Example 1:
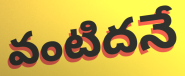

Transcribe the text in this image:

వంటిదనే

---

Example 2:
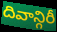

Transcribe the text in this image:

దివాన్గిరీ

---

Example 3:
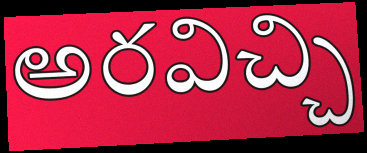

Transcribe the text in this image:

అరవిచ్చి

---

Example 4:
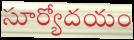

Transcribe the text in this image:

సూర్యోదయం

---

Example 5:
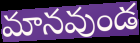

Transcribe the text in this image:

మానవుండ